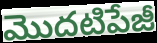
మొదటిపేజీ